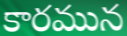
కారమున